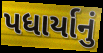
પધાર્યાનું